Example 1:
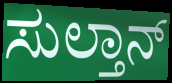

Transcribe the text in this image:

ಸುಲ್ತಾನ್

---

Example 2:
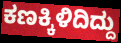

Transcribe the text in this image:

ಕಣಕ್ಕಿಳಿದಿದ್ದು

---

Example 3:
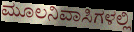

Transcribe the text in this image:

ಮೂಲನಿವಾಸಿಗಳಲ್ಲಿ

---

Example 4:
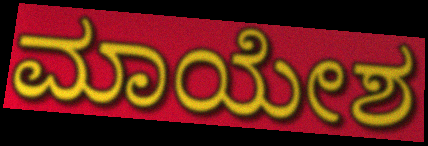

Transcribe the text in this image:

ಮಾಯೇಶ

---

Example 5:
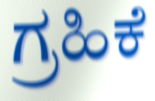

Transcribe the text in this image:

ಗ್ರಹಿಕೆ